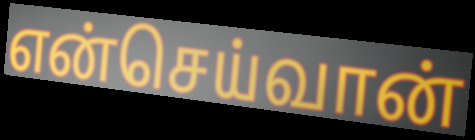
என்செய்வான்